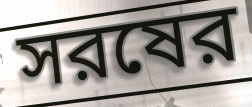
সরষের